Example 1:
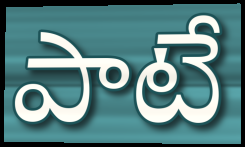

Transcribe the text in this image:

పాటే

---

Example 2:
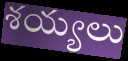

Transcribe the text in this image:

శయ్యలు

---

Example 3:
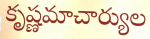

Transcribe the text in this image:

కృష్ణమాచార్యుల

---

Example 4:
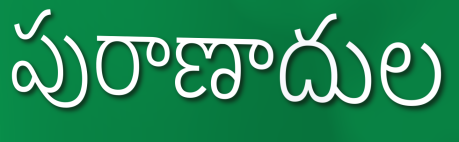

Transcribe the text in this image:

పురాణాదుల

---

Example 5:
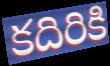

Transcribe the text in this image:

కదిరికి